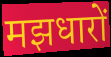
मझधारों